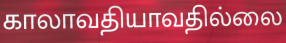
காலாவதியாவதில்லை